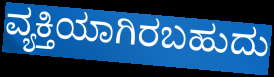
ವ್ಯಕ್ತಿಯಾಗಿರಬಹುದು